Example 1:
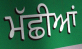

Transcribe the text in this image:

ਮੱਛੀਆਂ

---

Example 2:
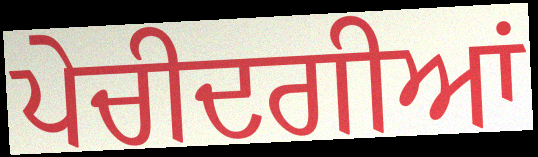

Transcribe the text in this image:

ਪੇਚੀਦਗੀਆਂ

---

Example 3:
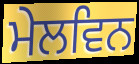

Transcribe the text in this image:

ਮੇਲਵਿਨ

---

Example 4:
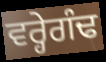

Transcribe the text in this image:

ਵਰ੍ਹੇਗੰਢ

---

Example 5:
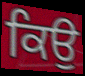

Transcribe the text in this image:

ਕਿਉ